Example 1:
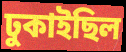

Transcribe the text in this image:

ঢুকাইছিল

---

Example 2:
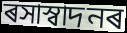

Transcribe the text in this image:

ৰসাস্বাদনৰ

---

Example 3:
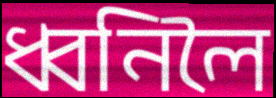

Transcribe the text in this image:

ধ্বনিলৈ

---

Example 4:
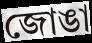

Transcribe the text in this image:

জোঙা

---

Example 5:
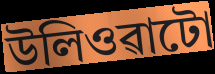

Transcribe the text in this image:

উলিওৱাটো